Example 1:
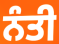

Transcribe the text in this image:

ਨੰਤੀ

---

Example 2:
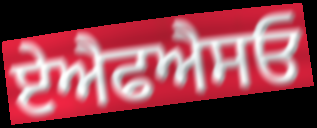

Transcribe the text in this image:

ਏਐਫਐਸਓ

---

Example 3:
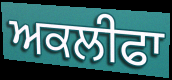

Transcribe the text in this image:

ਅਕਲੀਫਾ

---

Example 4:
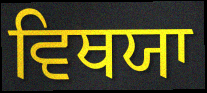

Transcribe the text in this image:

ਵਿਥਯਾ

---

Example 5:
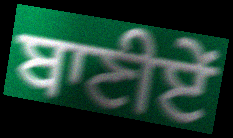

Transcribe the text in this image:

ਬਾਣੀਏਂ